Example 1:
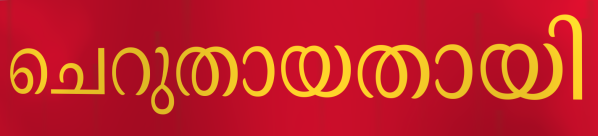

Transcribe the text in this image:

ചെറുതായതായി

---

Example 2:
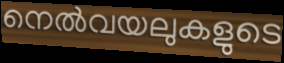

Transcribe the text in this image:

നെൽവയലുകളുടെ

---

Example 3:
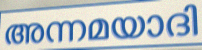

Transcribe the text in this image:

അന്നമയാദി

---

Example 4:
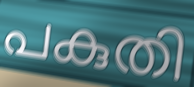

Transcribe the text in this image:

പകുതി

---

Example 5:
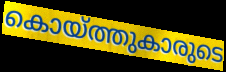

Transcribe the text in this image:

കൊയ്ത്തുകാരുടെ